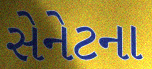
સેનેટના